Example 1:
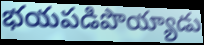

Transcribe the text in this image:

భయపడిపొయ్యాడు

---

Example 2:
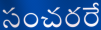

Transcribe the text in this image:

సంచరరే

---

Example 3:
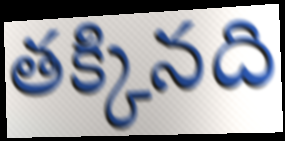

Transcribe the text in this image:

తక్కినది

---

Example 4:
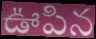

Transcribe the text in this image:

ఊపిన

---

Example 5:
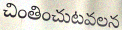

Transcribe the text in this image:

చింతించుటవలన